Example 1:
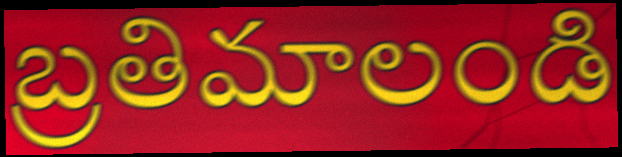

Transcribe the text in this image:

బ్రతిమాలండి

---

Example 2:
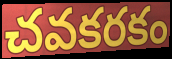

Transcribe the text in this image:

చవకరకం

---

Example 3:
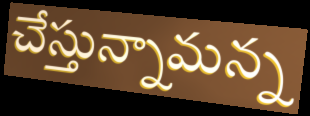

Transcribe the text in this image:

చేస్తున్నామన్న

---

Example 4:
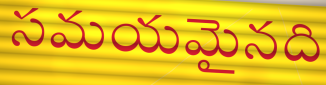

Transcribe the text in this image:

సమయమైనది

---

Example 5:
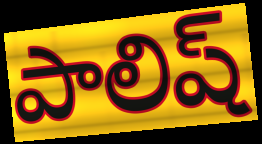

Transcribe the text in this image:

పాలిష్